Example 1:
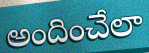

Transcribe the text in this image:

అందించేలా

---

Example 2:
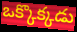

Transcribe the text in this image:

ఒక్కొక్కడు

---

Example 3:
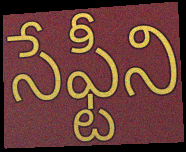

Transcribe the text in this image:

సేఫ్టీని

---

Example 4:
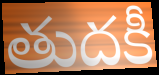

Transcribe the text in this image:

తుదకీ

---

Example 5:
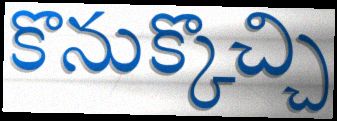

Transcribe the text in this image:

కొనుక్కొచ్చి